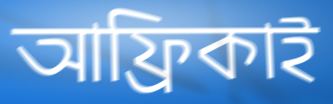
আফ্রিকাই